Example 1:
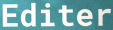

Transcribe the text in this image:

Editer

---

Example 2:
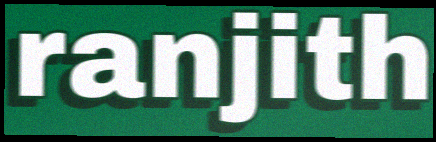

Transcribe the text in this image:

ranjith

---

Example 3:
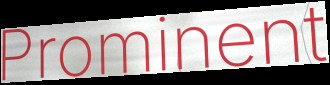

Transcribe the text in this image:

Prominent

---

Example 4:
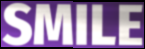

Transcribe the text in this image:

SMILE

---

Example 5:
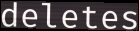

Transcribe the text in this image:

deletes